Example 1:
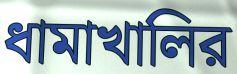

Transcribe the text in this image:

ধামাখালির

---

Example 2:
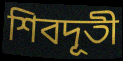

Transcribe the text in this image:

শিবদূতী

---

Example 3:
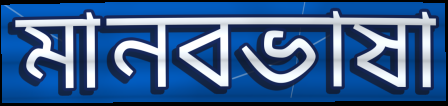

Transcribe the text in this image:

মানবভাষা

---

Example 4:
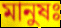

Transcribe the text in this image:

মানুষঃ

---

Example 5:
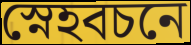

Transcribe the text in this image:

স্নেহবচনে